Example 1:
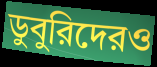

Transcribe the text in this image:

ডুবুরিদেরও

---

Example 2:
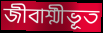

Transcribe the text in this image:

জীবাশ্মীভূত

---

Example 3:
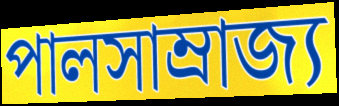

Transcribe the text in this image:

পালসাম্রাজ্য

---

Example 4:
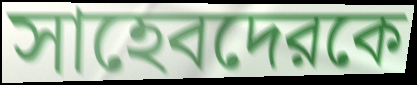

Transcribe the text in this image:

সাহেবদেরকে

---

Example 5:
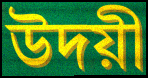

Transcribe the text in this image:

উদয়ী